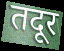
तदूर